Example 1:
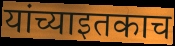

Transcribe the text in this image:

यांच्याइतकाच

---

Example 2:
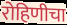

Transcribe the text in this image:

रोहिणीचा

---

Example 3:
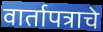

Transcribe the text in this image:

वार्तापत्राचे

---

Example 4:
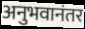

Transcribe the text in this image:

अनुभवानंतर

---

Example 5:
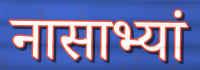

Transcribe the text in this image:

नासाभ्यां